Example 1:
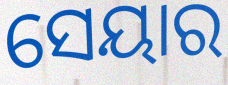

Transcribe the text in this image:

ସେୟାର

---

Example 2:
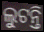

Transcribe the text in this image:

ଲୁଟନ୍ତି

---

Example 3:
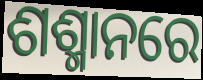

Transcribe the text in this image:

ଶଶ୍ମାନରେ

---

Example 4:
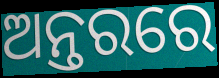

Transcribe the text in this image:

ଅନ୍ତରରେ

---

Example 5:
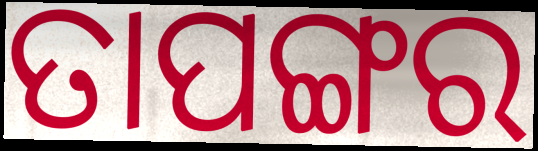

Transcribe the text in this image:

ତାପଙ୍ଗର